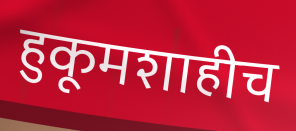
हुकूमशाहीच